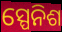
ସ୍ପେନିଶ